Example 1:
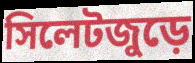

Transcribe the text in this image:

সিলেটজুড়ে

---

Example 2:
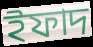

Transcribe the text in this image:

ইফাদ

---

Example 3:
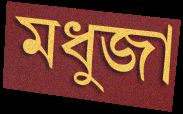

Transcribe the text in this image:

মধুজা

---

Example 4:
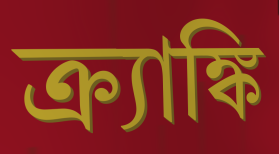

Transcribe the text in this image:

ক্র্যাঙ্কি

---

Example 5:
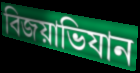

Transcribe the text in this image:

বিজয়াভিযান